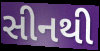
સીનથી